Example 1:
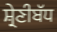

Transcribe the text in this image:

ਸ਼੍ਰੇਣੀਬੱਧ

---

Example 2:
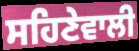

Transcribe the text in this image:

ਸਹਿਣੇਵਾਲੀ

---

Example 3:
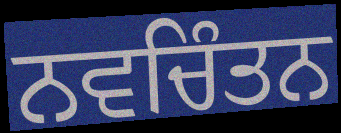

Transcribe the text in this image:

ਨਵਚਿੰਤਨ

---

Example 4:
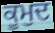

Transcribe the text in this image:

ਕੂਮੁਦ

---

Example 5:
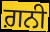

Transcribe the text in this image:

ਗ਼ਨੀ